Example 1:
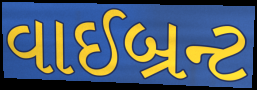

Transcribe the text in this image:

વાઈબ્રન્ટ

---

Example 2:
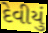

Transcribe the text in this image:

દેવીયું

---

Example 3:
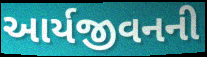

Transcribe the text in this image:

આર્યજીવનની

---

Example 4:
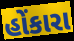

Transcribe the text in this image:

હોંકારા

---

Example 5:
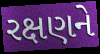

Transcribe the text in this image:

રક્ષણને